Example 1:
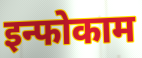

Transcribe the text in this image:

इन्फोकाम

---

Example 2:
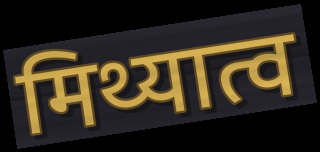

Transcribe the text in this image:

मिथ्यात्व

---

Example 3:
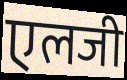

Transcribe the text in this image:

एलजी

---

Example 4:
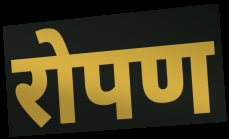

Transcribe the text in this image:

रोपण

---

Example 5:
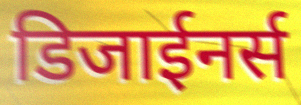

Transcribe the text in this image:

डिजाईनर्स